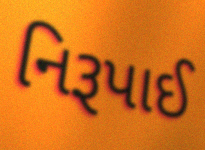
નિરૂપાઈ